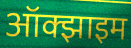
ऑक्झाइम